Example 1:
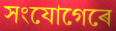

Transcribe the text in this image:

সংযোগেৰে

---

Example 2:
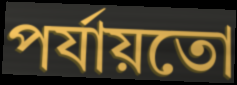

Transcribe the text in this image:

পৰ্যায়তো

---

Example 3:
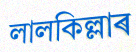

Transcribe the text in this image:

লালকিল্লাৰ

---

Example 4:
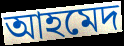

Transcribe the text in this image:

আহমেদ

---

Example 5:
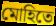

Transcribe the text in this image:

মোহিতে